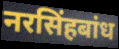
नरसिंहबांध